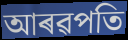
আৰৱপতি